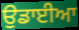
ਉਡਾਈਆ